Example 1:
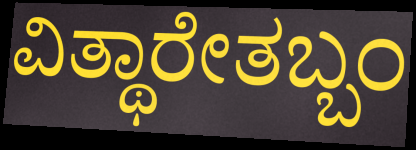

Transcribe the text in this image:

ವಿತ್ಥಾರೇತಬ್ಬಂ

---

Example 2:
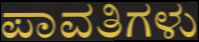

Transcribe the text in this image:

ಪಾವತಿಗಳು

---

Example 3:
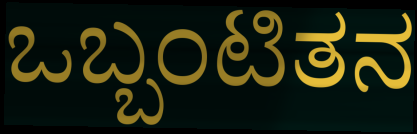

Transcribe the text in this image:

ಒಬ್ಬಂಟಿತನ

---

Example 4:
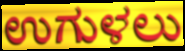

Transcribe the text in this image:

ಉಗುಳಲು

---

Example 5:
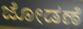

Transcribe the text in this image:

ಜೋಡಣೆ